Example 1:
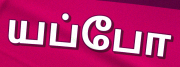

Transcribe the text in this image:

யப்போ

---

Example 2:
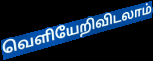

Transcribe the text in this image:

வெளியேறிவிடலாம்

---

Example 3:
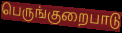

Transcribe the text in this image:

பெருங்குறைபாடு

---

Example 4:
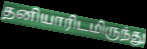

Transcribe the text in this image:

தனியாரிடமிருந்து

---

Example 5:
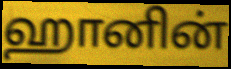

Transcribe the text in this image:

ஹானின்